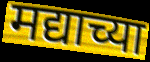
मद्याच्या